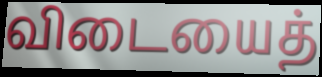
விடையைத்